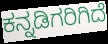
ಕನ್ನಡಿಗರಿಗಿದೆ